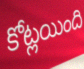
కోట్లయింది